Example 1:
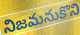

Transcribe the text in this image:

నిజమనుకొని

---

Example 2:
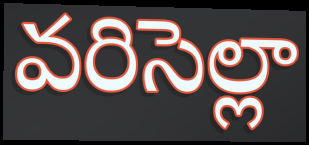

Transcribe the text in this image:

వరిసెల్లా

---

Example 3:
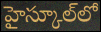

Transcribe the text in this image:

హైస్కూల్‌లో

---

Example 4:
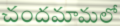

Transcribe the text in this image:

చందమామలో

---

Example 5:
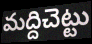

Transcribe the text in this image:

మద్దిచెట్టు